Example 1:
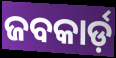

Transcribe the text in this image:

ଜବକାର୍ଡ଼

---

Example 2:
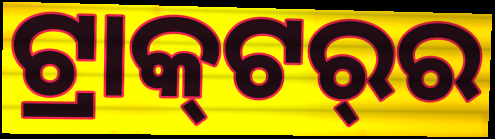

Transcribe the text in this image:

ଟ୍ରାକ୍‍ଟର୍‍ର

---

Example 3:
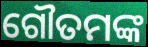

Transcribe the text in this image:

ଗୌତମଙ୍କ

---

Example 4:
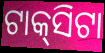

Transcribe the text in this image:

ଟାକ୍‌ସିଟା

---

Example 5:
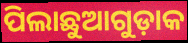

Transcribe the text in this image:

ପିଲାଛୁଆଗୁଡ଼ାକ